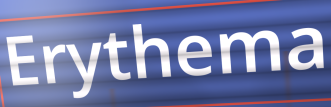
Erythema